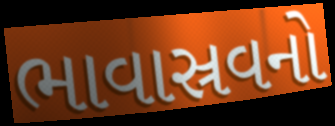
ભાવાસ્રવનો